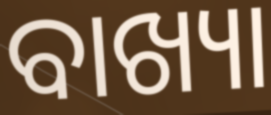
ବାଖ୍ୟା